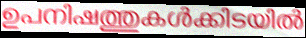
ഉപനിഷത്തുകൾക്കിടയിൽ